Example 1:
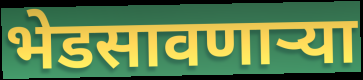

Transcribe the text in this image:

भेडसावणार्‍या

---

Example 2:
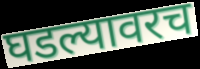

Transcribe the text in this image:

घडल्यावरच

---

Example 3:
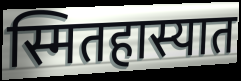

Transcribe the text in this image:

स्मितहास्यात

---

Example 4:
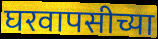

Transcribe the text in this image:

घरवापसीच्या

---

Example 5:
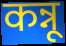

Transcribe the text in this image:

कन्नू